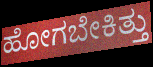
ಹೋಗಬೇಕಿತ್ತು